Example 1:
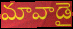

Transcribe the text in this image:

మావాడై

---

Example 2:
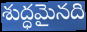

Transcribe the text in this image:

శుద్ధమైనది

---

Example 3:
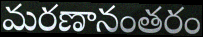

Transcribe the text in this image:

మరణానంతరం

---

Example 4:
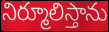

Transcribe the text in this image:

నిర్మూలిస్తాను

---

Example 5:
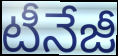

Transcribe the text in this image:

టీనేజీ